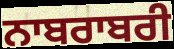
ਨਾਬਰਾਬਰੀ